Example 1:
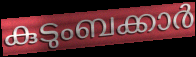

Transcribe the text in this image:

കുടുംബക്കാർ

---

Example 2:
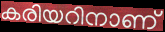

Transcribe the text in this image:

കരിയറിനാണ്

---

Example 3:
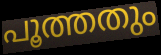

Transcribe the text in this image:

പൂത്തതും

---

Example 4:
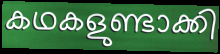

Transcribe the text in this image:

കഥകളുണ്ടാക്കി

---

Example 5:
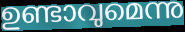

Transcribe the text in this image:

ഉണ്ടാവുമെന്നു